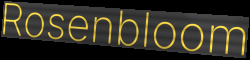
Rosenbloom